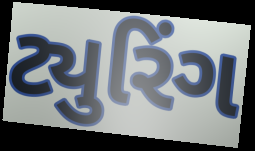
ટ્યુરિંગ